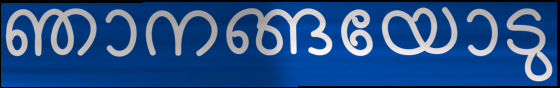
ഞാനങ്ങയോടു